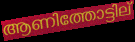
ആണിത്തോട്ടില്